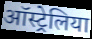
ऑस्ट्रेलिया